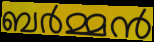
ബർമ്മൻ